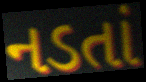
નડતાં